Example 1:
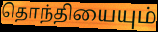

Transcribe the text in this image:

தொந்தியையும்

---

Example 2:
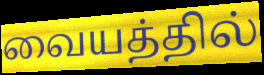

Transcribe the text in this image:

வையத்தில்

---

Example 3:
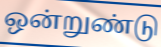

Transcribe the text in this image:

ஒன்றுண்டு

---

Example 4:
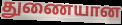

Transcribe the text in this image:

துணையான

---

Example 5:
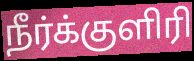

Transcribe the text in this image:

நீர்க்குளிரி